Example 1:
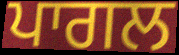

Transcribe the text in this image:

ਪਾਗਲ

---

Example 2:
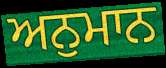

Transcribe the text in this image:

ਅਨੁਮਾਨ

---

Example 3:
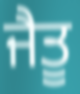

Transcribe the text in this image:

ਜੈਤੂ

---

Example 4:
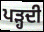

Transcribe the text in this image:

ਪੜ੍ਹਦੀ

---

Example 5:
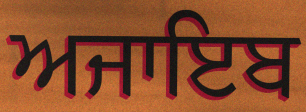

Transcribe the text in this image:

ਅਜਾਇਬ